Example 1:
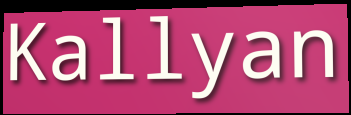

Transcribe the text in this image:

Kallyan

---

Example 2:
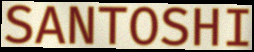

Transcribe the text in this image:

SANTOSHI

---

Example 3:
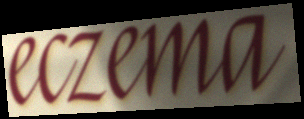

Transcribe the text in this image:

eczema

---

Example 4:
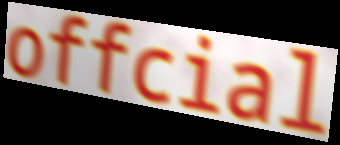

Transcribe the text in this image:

offcial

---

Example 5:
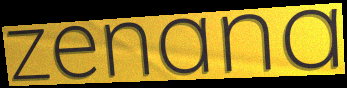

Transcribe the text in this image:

zenana